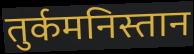
तुर्कमनिस्तान